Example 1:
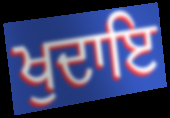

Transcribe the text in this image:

ਖੁਦਾਇ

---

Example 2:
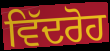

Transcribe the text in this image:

ਵਿੱਦਰੋਹ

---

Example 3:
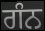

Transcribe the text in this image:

ਗੰਨ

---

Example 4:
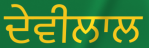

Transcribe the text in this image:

ਦੇਵੀਲਾਲ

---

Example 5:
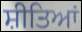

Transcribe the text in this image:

ਸ਼ੀਤਿਆਂ